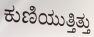
ಕುಣಿಯುತ್ತಿತ್ತು